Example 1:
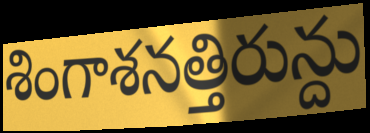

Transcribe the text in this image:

శింగాశనత్తిరున్దు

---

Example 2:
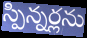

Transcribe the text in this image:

స్పిన్నర్లను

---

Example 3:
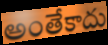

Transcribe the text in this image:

అంతేకాదు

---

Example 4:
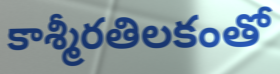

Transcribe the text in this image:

కాశ్మీరతిలకంతో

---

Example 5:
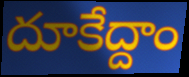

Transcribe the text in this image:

దూకేద్దాం